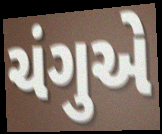
ચંગુએ